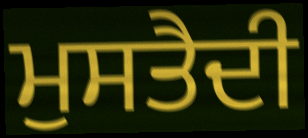
ਮੁਸਤੈਦੀ